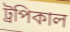
ট্রপিকাল